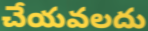
చేయవలదు